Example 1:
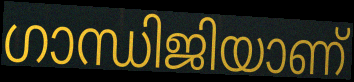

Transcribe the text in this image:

ഗാന്ധിജിയാണ്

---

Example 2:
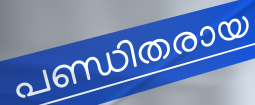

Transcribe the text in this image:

പണ്ഡിതരായ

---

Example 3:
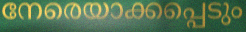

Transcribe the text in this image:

നേരെയാക്കപ്പെടും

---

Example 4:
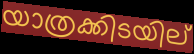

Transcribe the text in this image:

യാത്രക്കിടയില്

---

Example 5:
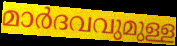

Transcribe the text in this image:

മാർദവവുമുള്ള